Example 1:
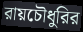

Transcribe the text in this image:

রায়চৌধুরির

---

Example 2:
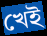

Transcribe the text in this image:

খেই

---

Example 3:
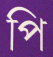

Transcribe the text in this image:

পি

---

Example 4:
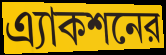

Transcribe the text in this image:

এ্যাকশনের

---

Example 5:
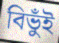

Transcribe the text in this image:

বিভুঁই